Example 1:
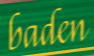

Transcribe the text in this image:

baden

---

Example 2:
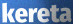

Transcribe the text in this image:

kereta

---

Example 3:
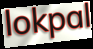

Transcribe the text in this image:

lokpal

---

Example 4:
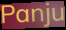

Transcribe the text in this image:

Panju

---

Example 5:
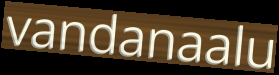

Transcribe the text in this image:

vandanaalu